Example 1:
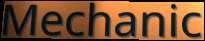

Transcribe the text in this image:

Mechanic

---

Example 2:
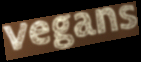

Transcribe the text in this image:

vegans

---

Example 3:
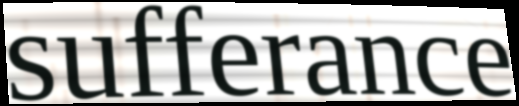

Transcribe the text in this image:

sufferance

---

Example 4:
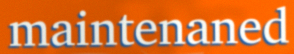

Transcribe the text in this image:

maintenaned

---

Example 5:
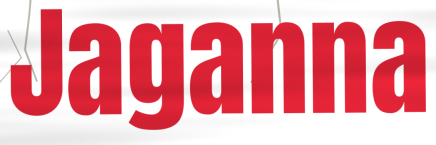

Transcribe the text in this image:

Jaganna